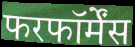
फरफॉर्मेंस